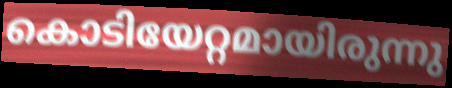
കൊടിയേറ്റമായിരുന്നു